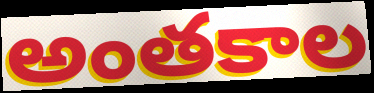
అంతకాల